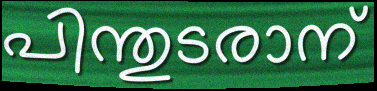
പിന്തുടരാന്